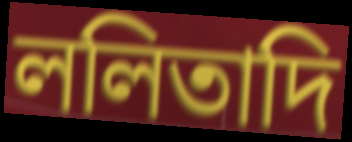
ললিতাদি